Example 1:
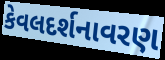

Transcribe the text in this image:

કેવલદર્શનાવરણ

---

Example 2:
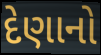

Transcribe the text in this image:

દેણાનો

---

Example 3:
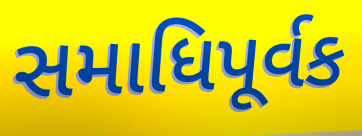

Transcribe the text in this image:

સમાધિપૂર્વક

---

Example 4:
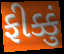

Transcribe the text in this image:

ફીક્કું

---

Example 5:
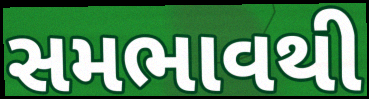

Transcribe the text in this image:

સમભાવથી